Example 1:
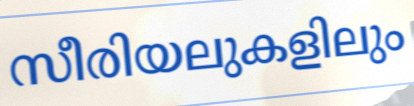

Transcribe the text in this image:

സീരിയലുകളിലും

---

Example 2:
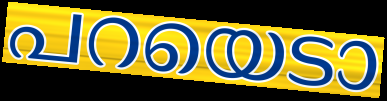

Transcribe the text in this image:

പറയെടാ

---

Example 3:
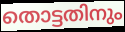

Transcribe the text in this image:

തൊട്ടതിനും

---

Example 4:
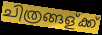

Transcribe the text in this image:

ചിത്രങ്ങള്ക്ക്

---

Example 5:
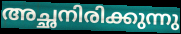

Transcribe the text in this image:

അച്ഛനിരിക്കുന്നു